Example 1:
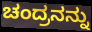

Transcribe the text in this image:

ಚಂದ್ರನನ್ನು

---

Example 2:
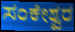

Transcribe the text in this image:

ಸಂಕೇಶ್ವರ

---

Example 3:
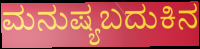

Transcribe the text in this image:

ಮನುಷ್ಯಬದುಕಿನ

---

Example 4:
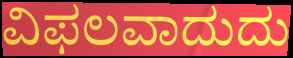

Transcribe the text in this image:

ವಿಫಲವಾದುದು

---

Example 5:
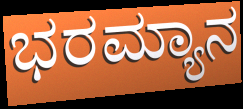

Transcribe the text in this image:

ಭರಮ್ಯಾನ